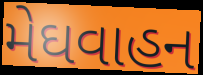
મેઘવાહન